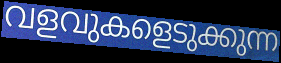
വളവുകളെടുക്കുന്ന